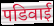
पडिवाई